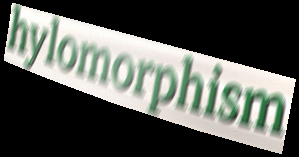
hylomorphism